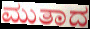
ಮುತಾದ